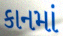
કાનમાં